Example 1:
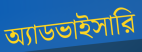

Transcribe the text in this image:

অ্যাডভাইসারি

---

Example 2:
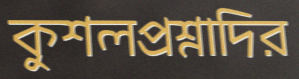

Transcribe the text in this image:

কুশলপ্রশ্নাদির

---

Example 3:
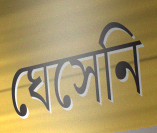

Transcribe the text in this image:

ঘেসেনি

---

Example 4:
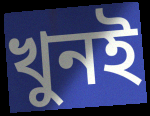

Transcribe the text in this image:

খুনই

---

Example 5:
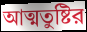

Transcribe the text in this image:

আত্মতুষ্টির